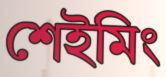
শেইমিং